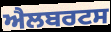
ਐਲਬਰਟਸ